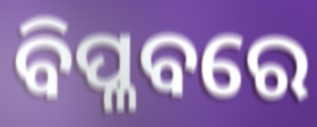
ବିପ୍ଳବରେ